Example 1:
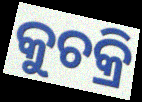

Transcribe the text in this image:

କୁଚକ୍ରି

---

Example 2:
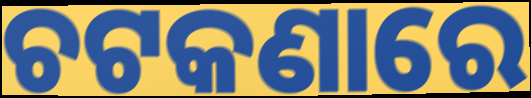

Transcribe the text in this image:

ଚଟକଣାରେ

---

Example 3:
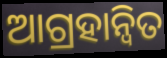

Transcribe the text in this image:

ଆଗ୍ରହାନ୍ୱିତ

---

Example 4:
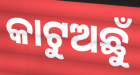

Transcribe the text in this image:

କାଟୁଅଛୁଁ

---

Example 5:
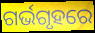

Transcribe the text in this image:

ଗର୍ଭଗୃହରେ